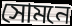
সোমনে